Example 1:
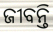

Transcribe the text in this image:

ଜୀବନ୍ତି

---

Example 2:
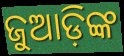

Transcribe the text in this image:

ଜୁଆଡ଼ିଙ୍କ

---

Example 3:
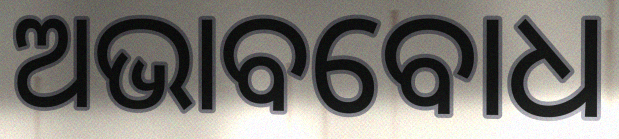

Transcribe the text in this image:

ଅଭାବବୋଧ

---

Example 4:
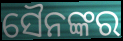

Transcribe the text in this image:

ସୈନଙ୍କର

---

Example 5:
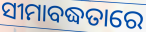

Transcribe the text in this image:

ସୀମାବଦ୍ଧତାରେ